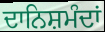
ਦਾਨਿਸ਼ਮੰਦਾਂ